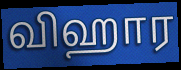
விஹார